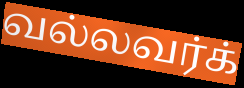
வல்லவர்க்